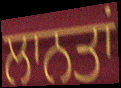
ਲਾਨਤਾਂ